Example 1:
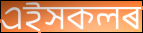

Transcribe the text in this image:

এইসকলৰ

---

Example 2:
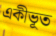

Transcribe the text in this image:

একীভূত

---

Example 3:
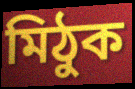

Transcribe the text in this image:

মিঠুক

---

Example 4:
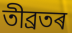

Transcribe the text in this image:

তীব্ৰতৰ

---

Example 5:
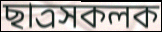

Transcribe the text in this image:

ছাত্ৰসকলক